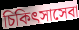
চিকিৎসাসেবা